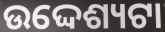
ଉଦ୍ଦେଶ୍ୟଟା